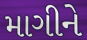
માગીને